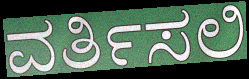
ವರ್ತಿಸಲಿ